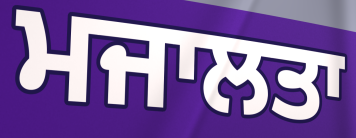
ਮਜਾਲਤਾ